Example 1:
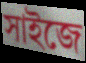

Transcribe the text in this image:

সাইজে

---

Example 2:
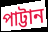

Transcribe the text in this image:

পাট্টান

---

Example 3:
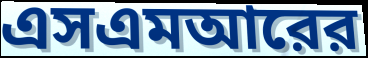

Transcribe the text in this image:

এসএমআরের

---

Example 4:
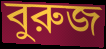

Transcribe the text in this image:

বুরুজ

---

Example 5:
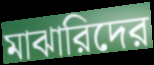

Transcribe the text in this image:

মাঝারিদের